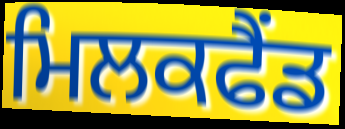
ਮਿਲਕਫੈਂਡ